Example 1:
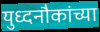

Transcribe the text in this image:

युध्दनौकांच्या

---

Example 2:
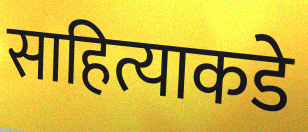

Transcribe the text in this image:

साहित्याकडे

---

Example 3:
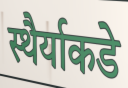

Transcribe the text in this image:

स्थैर्याकडे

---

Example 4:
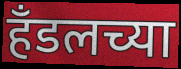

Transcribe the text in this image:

हॅंडलच्या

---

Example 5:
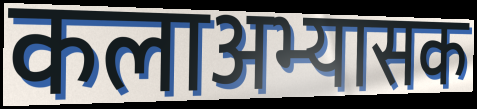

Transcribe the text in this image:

कलाअभ्यासक